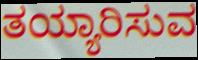
ತಯ್ಯಾರಿಸುವ